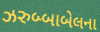
ઝરુબ્બાબેલના